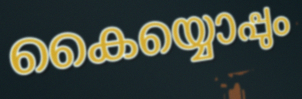
കൈയ്യൊപ്പും